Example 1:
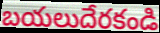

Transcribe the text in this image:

బయలుదేరకండి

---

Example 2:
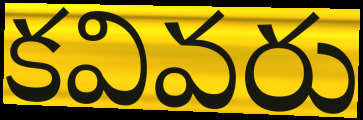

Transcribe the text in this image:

కవివరు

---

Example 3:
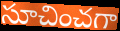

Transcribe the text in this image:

సూచించగా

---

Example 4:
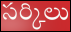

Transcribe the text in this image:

సర్కిలు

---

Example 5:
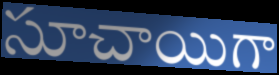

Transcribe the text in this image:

సూచాయిగా